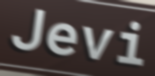
Jevi